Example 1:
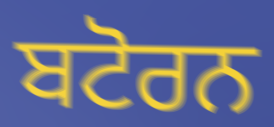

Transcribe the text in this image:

ਬਟੋਰਨ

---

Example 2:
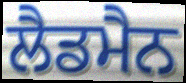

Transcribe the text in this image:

ਲੈਡਮੈਨ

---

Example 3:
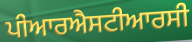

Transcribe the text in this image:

ਪੀਆਰਐਸਟੀਆਰਸੀ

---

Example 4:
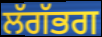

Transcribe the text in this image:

ਲੱਗੱਭਗ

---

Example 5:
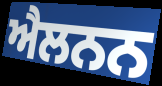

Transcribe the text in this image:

ਐਲਨਨ